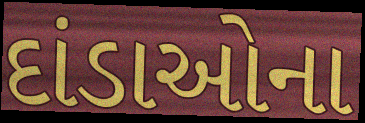
દાંડાઓના